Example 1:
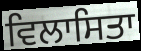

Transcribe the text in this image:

ਵਿਲਾਸਿਤਾ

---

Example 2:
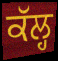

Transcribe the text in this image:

ਕੱਲ੍ਹ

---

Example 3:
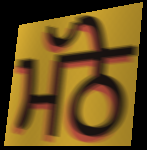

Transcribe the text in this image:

ਮੱਠੇ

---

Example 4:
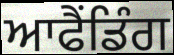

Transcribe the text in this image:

ਆਫੈਂਡਿੰਗ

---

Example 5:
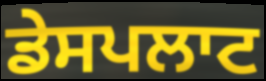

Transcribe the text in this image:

ਡੇਸਪਲਾਟ